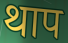
थाप